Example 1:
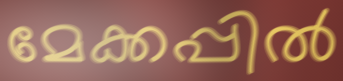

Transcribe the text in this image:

മേക്കപ്പിൽ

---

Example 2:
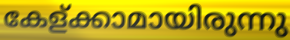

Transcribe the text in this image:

കേള്ക്കാമായിരുന്നു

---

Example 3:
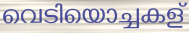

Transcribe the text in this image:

വെടിയൊച്ചകള്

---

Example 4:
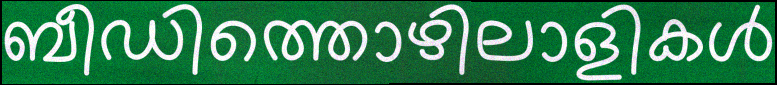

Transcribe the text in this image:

ബീഡിത്തൊഴിലാളികൾ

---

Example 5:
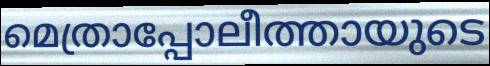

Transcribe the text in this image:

മെത്രാപ്പോലീത്തായുടെ